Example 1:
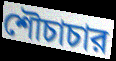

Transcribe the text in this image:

শৌচাচার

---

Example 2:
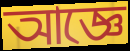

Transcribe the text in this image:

আজ্ঞে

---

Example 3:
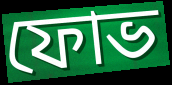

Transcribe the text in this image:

ফোভ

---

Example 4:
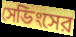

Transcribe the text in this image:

সেভিংসের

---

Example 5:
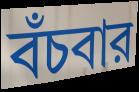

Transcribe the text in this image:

বঁচবার